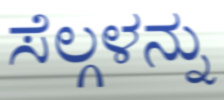
ಸೆಲ್ಗಳನ್ನು